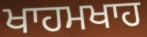
ਖਾਹਮਖਾਹ